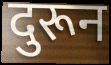
दुरून